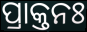
ପ୍ରାକ୍ତନଃ